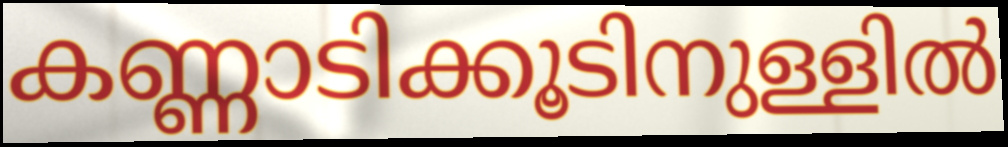
കണ്ണാടിക്കൂടിനുള്ളിൽ